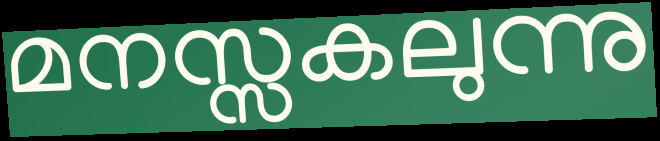
മനസ്സകലുന്നു